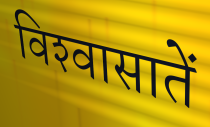
विश्वासातें